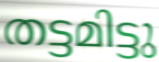
തട്ടമിട്ടു